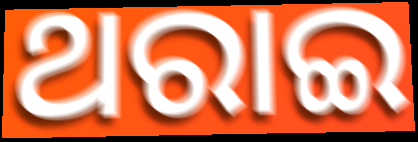
ଥରାଇ